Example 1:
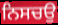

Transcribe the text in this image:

ਨਿਸਚਉ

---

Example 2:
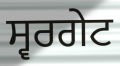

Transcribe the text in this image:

ਸ੍ਵਰਗੇਟ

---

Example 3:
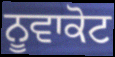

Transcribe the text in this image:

ਨੂਵਾਕੋਟ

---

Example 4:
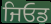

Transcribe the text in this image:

ਜਿਓਡ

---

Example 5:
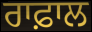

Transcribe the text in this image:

ਰਾਫ਼ਾਲ